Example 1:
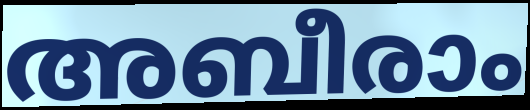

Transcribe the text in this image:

അബീരാം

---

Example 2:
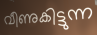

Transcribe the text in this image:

വീണുകിട്ടുന്ന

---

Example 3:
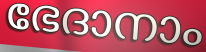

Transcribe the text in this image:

ഭേദാനാം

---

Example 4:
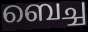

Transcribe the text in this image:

ബെച്ച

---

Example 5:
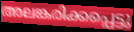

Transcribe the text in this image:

അലങ്കരിക്കപ്പെട്ടു